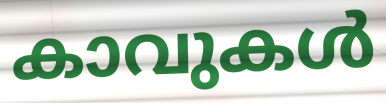
കാവുകൾ